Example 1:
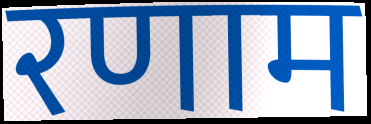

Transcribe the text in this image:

रणाम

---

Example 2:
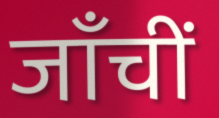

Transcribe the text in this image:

जाँचीं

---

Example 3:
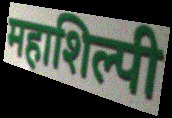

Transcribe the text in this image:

महाशिल्पी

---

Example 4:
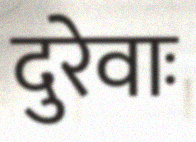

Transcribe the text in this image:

दुरेवाः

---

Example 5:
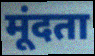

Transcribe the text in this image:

मूंदता